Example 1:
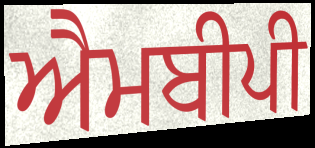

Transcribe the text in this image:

ਐਮਬੀਪੀ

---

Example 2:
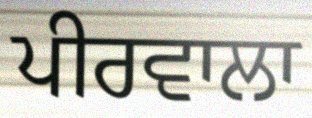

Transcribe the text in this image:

ਪੀਰਵਾਲਾ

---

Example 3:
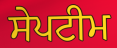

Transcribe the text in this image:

ਸੇਪਟੀਮ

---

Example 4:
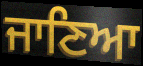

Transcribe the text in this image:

ਜਾਣਿਆ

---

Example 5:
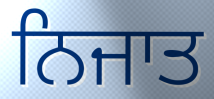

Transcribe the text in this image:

ਨਿਜਾਤ